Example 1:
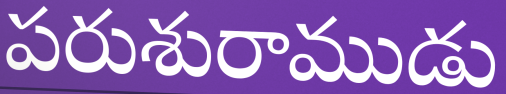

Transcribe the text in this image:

పరుశురాముడు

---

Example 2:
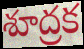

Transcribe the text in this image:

శూద్రక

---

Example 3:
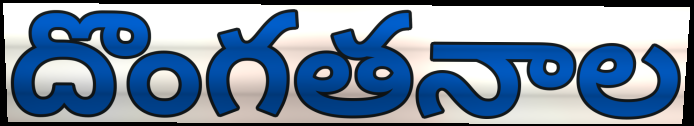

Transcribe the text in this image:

దొంగతనాల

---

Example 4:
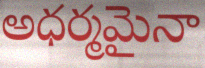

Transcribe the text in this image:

అధర్మమైనా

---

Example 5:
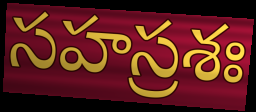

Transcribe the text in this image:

సహస్రశః